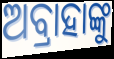
ଅବ୍ରାହାଙ୍କୁ